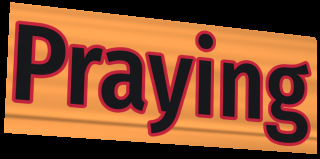
Praying